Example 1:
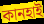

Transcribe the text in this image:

কানহাই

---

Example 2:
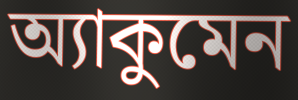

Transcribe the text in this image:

অ্যাকুমেন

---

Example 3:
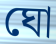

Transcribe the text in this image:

ঘো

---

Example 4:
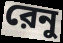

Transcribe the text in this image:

রেনু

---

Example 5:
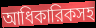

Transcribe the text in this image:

আধিকারিকসহ